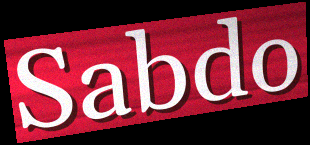
Sabdo